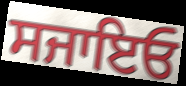
ਸਜਾਇਓ